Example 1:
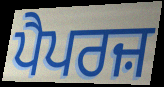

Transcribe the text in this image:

ਪੈਪਰਜ਼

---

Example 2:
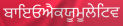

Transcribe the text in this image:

ਬਾਇਓਐਕਯੂਮੂਲੇਟਿਵ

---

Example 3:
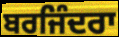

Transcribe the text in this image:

ਬਰਜਿੰਦਰਾ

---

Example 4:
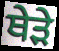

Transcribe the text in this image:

ਥੇੜੇ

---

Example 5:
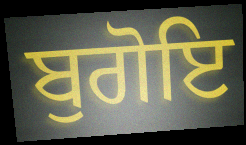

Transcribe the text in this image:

ਬੁਗੋਇ